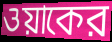
ওয়াকের